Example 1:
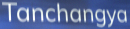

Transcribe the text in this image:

Tanchangya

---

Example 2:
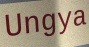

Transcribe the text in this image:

Ungya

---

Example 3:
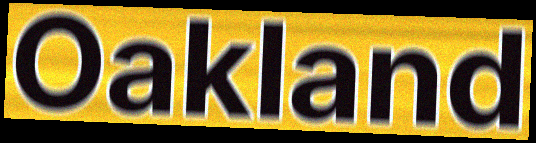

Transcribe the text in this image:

Oakland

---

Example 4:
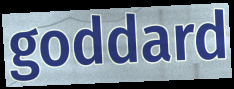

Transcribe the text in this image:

goddard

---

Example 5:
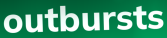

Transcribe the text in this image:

outbursts